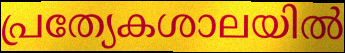
പ്രത്യേകശാലയിൽ